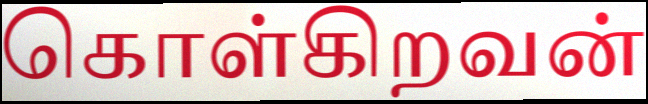
கொள்கிறவன்